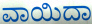
ವಾಯಿದಾ